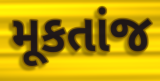
મૂકતાંજ